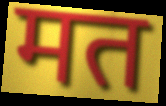
मत